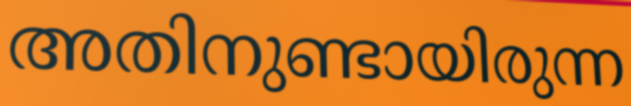
അതിനുണ്ടായിരുന്ന